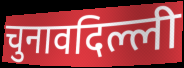
चुनावदिल्ली